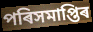
পৰিসমাপ্তিৰ